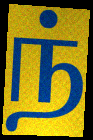
ந்